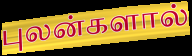
புலன்களால்